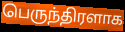
பெருந்திரளாக